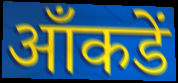
आँकडें